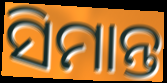
ସିମାନ୍ତ